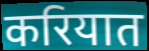
करियात